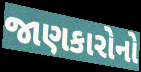
જાણકારોનો